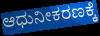
ಆಧುನೀಕರಣಕ್ಕೆ